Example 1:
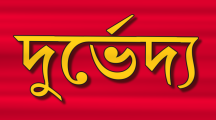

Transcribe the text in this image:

দুর্ভেদ্য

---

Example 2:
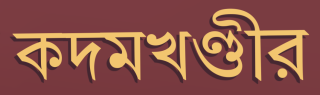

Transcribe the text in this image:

কদমখণ্ডীর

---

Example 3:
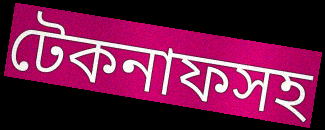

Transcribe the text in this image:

টেকনাফসহ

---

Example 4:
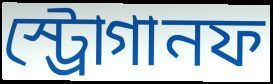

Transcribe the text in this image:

স্ট্রোগানফ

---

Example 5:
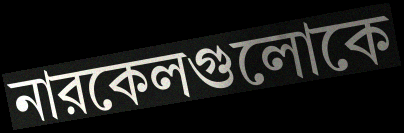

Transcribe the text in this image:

নারকেলগুলোকে